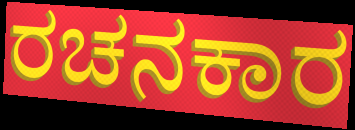
ರಚನಕಾರ